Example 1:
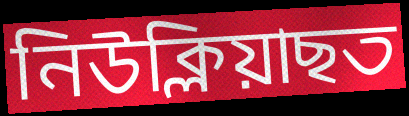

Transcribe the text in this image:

নিউক্লিয়াছত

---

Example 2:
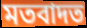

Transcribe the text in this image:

মতবাদত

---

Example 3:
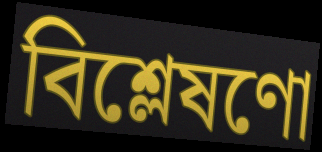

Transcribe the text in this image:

বিশ্লেষণো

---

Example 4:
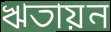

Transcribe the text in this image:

ঋতায়ন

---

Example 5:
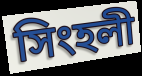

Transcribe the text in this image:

সিংহলী